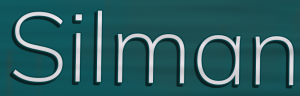
Silman